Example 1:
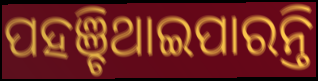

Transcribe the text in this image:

ପହଞ୍ଚିଥାଇପାରନ୍ତି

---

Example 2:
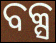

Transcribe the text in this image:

ବକ୍ସ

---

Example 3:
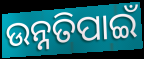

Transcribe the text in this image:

ଉନ୍ନତିପାଇଁ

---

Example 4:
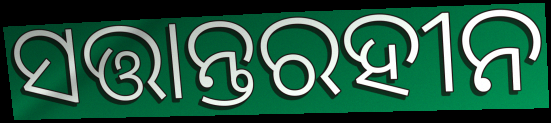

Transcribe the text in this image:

ସତ୍ତାନ୍ତରହୀନ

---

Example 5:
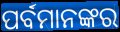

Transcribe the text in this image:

ପର୍ବମାନଙ୍କର